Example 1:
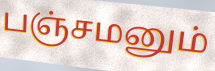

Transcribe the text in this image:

பஞ்சமனும்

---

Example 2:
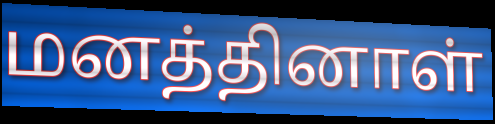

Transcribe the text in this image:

மனத்தினாள்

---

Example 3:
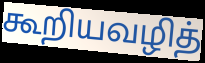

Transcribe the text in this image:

கூறியவழித்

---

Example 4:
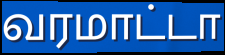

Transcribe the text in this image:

வரமாட்டா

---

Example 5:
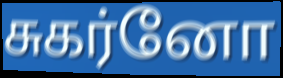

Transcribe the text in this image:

சுகர்னோ